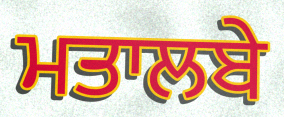
ਮਤਾਲਬੇ